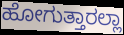
ಹೋಗುತ್ತಾರಲ್ಲಾ